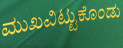
ಮುಖವಿಟ್ಟುಕೊಂಡು